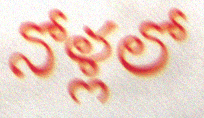
నోళ్లలో